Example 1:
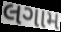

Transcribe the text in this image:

લગામ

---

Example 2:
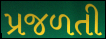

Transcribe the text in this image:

પ્રજળતી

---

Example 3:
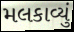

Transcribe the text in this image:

મલકાવ્યું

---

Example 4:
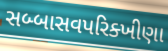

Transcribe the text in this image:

સબ્બાસવપરિક્ખીણા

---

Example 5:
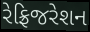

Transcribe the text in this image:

રેફ્રિજરેશન